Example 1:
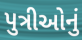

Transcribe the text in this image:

પુત્રીઓનું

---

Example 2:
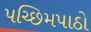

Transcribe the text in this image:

પચ્છિમપાઠો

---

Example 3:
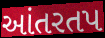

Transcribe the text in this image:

આંતરતપ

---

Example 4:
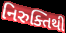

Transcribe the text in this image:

નિરુક્તિથી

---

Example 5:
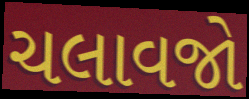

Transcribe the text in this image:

ચલાવજો